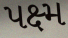
પક્ષ્મ